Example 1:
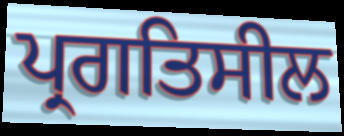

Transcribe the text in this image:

ਪ੍ਰਗਤਿਸੀਲ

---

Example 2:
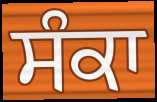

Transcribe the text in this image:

ਸੰਕਾ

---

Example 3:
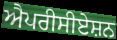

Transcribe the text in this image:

ਐਪਰੀਸੀਏਸ਼ਨ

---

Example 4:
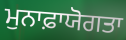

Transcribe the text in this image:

ਮੁਨਾਫ਼ਾਯੋਗਤਾ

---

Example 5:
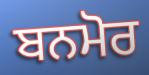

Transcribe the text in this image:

ਬਨਮੋਰ